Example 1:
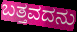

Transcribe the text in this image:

ಬತ್ತವದನು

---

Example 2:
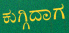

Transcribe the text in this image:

ಕುಗ್ಗಿದಾಗ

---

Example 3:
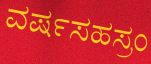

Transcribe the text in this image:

ವರ್ಷಸಹಸ್ರಂ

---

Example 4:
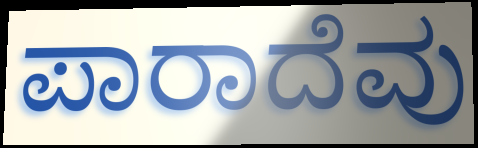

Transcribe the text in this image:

ಪಾರಾದೆವು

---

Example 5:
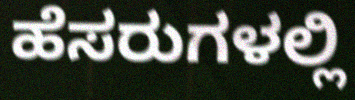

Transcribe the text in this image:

ಹೆಸರುಗಳಲ್ಲಿ